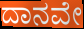
ದಾನವೇ